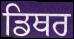
ਡਿਥਰ